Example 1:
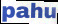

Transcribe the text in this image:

pahu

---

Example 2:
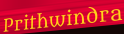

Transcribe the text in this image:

Prithwindra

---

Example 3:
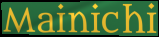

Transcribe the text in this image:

Mainichi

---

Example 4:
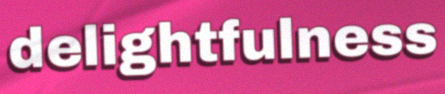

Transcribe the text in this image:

delightfulness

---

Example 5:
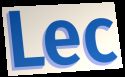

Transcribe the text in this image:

Lec